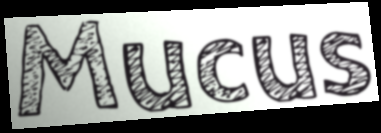
Mucus